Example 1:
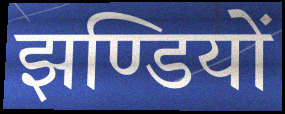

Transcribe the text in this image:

झण्डियों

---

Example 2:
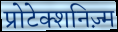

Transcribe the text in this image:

प्रोटेक्शनिज़्म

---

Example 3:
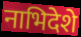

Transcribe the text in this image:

नाभिदेशे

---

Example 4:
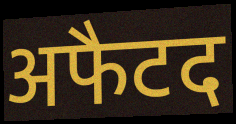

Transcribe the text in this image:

अफैटद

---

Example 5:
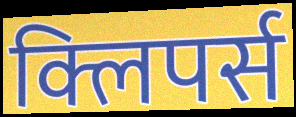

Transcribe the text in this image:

क्लिपर्स